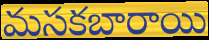
మసకబారాయి